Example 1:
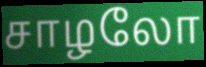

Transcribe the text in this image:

சாழலோ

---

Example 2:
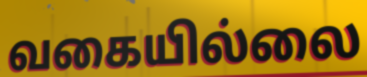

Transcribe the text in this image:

வகையில்லை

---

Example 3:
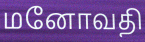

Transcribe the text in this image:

மனோவதி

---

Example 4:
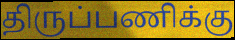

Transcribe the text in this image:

திருப்பணிக்கு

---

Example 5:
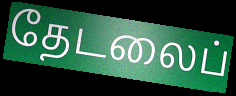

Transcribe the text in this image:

தேடலைப்